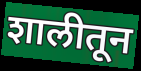
शालीतून